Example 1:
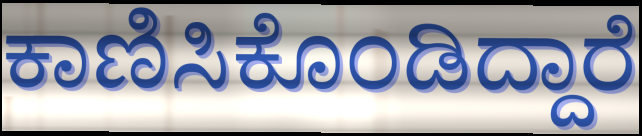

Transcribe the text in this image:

ಕಾಣಿಸಿಕೊಂಡಿದ್ದಾರೆ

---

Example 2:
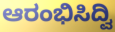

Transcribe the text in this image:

ಆರಂಭಿಸಿದ್ವಿ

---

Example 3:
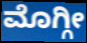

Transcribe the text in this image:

ಮೊಗ್ಗೀ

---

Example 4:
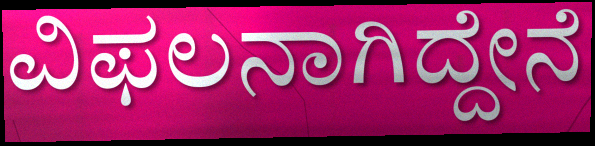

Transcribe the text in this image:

ವಿಫಲನಾಗಿದ್ದೇನೆ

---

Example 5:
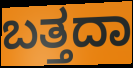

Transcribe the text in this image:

ಬತ್ತದಾ